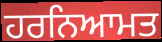
ਹਰਨਿਆਮਤ